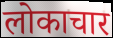
लोकाचार